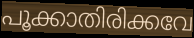
പൂക്കാതിരിക്കവേ